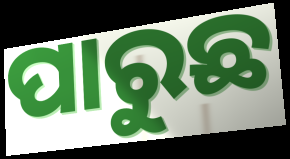
ପାରୁଛ